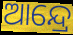
ଆନ୍ଦ୍ରେ